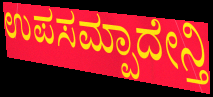
ಉಪಸಮ್ಪಾದೇನ್ತಿ